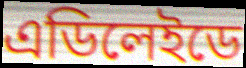
এডিলেইডে